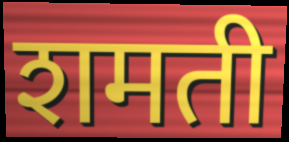
शमती